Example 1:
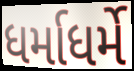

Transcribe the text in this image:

ધર્માધર્મે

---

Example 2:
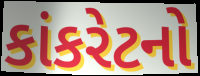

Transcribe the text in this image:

કાંકરેટનો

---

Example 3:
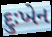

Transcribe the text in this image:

દુઃખેન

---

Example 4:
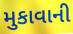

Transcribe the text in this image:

મુકાવાની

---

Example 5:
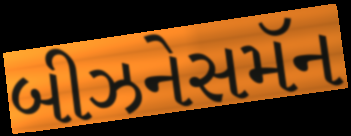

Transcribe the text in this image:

બીઝનેસમૅન